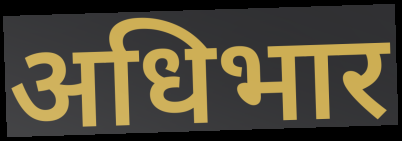
अधिभार